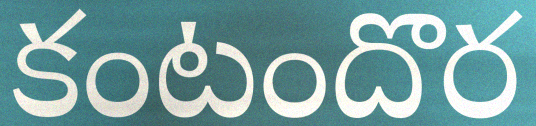
కంటందొర